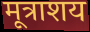
मूत्राशय